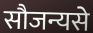
सौजन्यसे